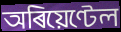
অৰিয়েণ্টেল